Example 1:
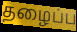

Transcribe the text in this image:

தழைப்ப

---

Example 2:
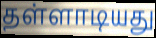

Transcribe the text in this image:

தள்ளாடியது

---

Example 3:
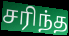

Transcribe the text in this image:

சரிந்த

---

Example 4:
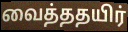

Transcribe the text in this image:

வைத்ததயிர்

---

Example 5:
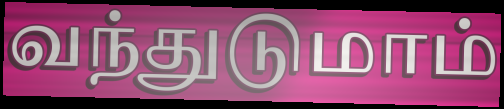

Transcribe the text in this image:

வந்துடுமாம்